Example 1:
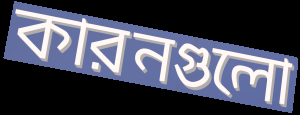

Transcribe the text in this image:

কারনগুলো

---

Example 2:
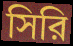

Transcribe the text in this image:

সিরি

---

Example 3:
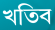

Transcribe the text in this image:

খতিব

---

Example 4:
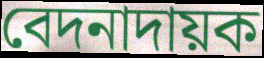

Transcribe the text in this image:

বেদনাদায়ক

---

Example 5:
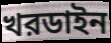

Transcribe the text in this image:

খরডাইন